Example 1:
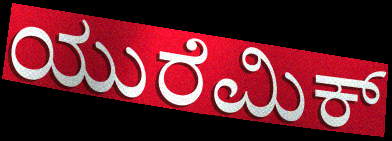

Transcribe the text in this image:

ಯುರೆಮಿಕ್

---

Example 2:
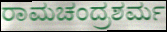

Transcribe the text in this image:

ರಾಮಚಂದ್ರಶರ್ಮ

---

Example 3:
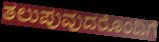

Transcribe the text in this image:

ತಲುಪುವುದರೊಂದಿಗೆ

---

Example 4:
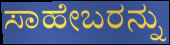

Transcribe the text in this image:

ಸಾಹೇಬರನ್ನು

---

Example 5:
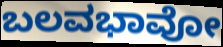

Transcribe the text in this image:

ಬಲವಭಾವೋ